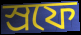
স্রফে